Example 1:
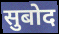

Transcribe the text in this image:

सुबोद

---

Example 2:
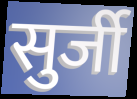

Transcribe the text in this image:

सुर्जी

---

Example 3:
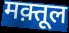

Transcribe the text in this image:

मक़्तूल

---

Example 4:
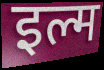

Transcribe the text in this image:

इल्म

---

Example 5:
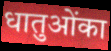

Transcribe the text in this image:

धातुओंका